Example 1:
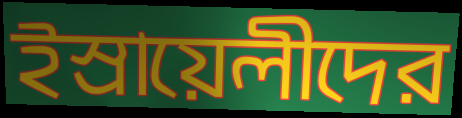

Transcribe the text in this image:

ইস্রায়েলীদের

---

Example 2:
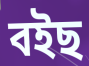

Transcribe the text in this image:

বইছ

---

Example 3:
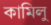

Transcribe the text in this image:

কামিলু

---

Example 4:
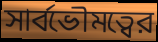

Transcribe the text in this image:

সার্বভৌমত্বের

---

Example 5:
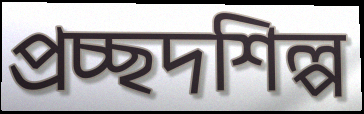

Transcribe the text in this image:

প্রচ্ছদশিল্প